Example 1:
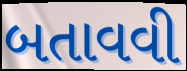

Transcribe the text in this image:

બતાવવી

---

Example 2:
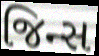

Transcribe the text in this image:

જિન્સ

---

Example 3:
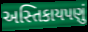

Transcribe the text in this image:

અસ્તિકાયપણું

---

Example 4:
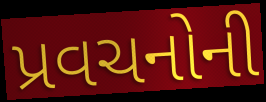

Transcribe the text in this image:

પ્રવચનોની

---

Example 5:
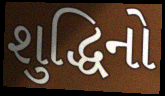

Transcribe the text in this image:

શુદ્ધિનો